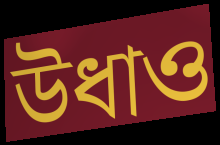
উধাও